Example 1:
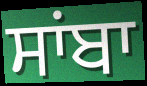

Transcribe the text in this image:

ਸਾਂਬਾ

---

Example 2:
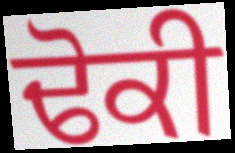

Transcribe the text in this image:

ਢੋਕੀ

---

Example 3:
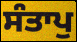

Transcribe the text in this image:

ਸੰਤਾਪੁ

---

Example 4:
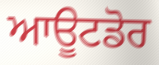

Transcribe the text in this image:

ਆਊਟਡੋਰ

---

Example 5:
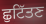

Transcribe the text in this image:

ਛੁਟਿੱਤਣ